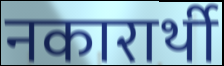
नकारार्थी